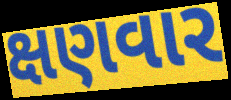
ક્ષણવાર